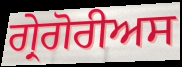
ਗ੍ਰੇਗੋਰੀਅਸ